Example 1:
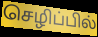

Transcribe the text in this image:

செழிப்பில்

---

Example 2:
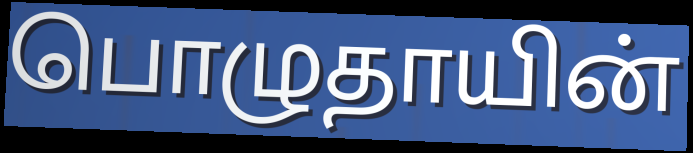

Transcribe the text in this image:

பொழுதாயின்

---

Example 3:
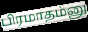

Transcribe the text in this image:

பிரமாதம்னு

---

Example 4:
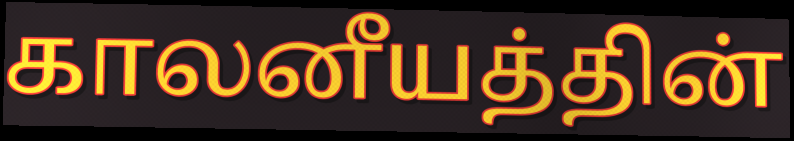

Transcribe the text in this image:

காலனீயத்தின்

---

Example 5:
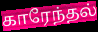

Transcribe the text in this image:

காரேந்தல்